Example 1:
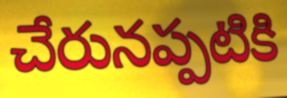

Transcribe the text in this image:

చేరునప్పటికి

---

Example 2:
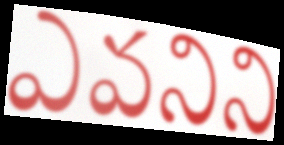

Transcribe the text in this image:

ఎవనిని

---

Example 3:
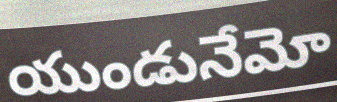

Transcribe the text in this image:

యుండునేమో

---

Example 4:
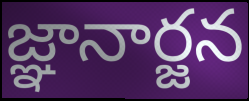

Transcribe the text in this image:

జ్ఞానార్జన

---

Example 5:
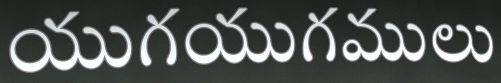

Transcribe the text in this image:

యుగయుగములు